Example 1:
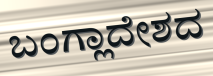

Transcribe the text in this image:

ಬಂಗ್ಲಾದೇಶದ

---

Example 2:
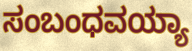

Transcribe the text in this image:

ಸಂಬಂಧವಯ್ಯಾ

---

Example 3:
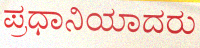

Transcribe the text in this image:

ಪ್ರಧಾನಿಯಾದರು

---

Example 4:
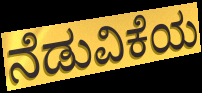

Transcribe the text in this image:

ನೆಡುವಿಕೆಯ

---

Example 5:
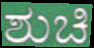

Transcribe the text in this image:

ಶುಚಿ